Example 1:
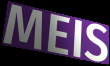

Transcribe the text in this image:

MEIS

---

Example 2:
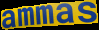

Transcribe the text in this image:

ammas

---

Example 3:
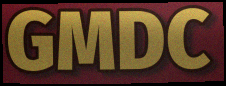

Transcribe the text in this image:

GMDC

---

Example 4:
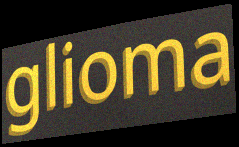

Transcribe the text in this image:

glioma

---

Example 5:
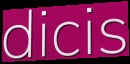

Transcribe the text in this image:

dicis